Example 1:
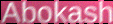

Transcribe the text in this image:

Abokash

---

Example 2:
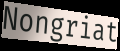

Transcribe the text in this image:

Nongriat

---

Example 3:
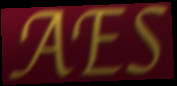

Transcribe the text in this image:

AES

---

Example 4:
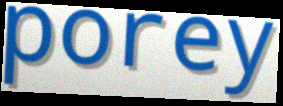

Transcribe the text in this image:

porey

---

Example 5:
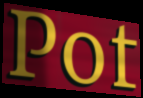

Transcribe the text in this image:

Pot